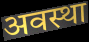
अवस्‍था